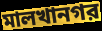
মালখানগর